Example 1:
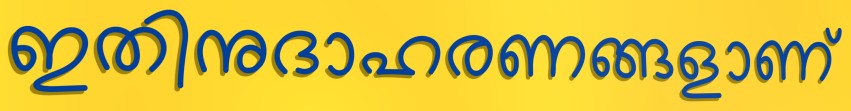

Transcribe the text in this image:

ഇതിനുദാഹരണങ്ങളാണ്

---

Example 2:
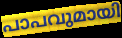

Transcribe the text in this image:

പാപവുമായി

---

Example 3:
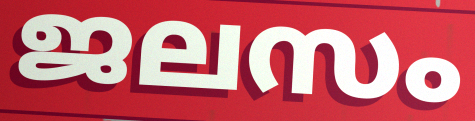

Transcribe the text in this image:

ജലസം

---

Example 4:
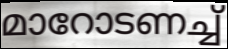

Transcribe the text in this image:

മാറോടണച്ച്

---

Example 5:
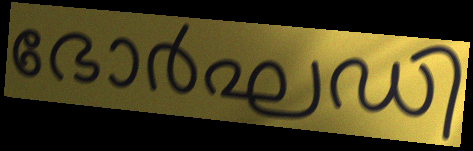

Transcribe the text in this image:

ഭോർഘഡി